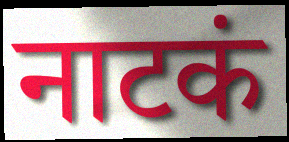
नाटकं